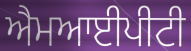
ਐਮਆਈਪੀਟੀ